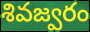
శివజ్వరం